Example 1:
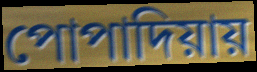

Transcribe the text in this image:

পোপাদিয়ায়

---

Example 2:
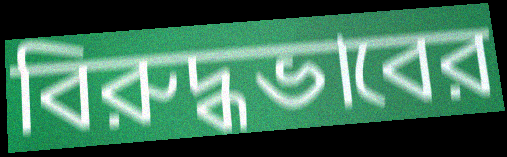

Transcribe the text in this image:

বিরুদ্ধভাবের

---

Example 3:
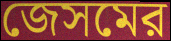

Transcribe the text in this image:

জেসমের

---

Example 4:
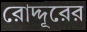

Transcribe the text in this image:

রোদ্দূরের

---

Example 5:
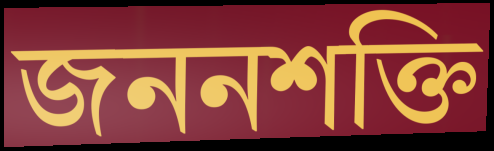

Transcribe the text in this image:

জননশক্তি